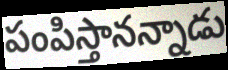
పంపిస్తానన్నాడు